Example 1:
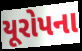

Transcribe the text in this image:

યૂરોપના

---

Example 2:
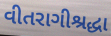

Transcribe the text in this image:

વીતરાગીશ્રદ્ધા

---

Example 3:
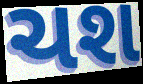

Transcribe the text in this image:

ચશ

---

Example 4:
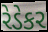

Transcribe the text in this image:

રેડેકર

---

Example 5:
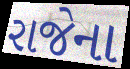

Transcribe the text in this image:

રાજેના